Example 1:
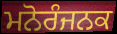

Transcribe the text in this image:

ਮਨੋਰੰਜਨਕ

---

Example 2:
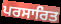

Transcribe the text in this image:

ਪਰਸਾਰਿਤ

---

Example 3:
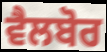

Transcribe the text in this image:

ਵੈਲਬੋਰ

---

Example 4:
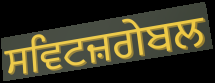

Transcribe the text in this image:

ਸਵਿਟਜ਼ਗੇਬਲ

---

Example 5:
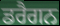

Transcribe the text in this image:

ਡਰੈਗਨ